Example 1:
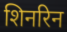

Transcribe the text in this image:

शिनरिन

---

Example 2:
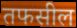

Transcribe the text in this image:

तफसील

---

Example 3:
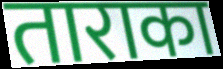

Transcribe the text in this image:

ताराका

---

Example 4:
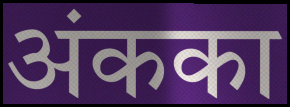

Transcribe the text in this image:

अंकका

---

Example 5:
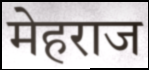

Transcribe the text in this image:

मेहराज